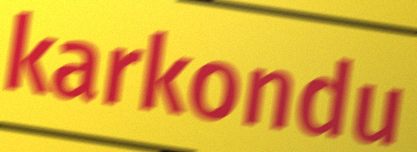
karkondu